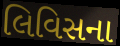
લિવિસના